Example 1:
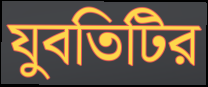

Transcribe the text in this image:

যুবতিটির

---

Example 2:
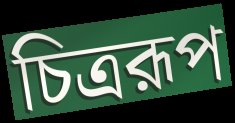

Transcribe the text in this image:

চিত্ররূপ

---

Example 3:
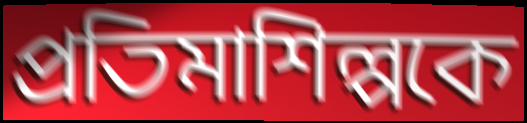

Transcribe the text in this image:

প্রতিমাশিল্পকে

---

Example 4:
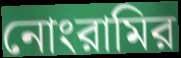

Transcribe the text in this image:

নোংরামির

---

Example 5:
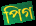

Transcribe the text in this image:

পিগ